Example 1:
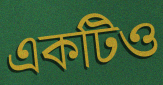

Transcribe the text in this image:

একটিও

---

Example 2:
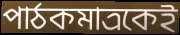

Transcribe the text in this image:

পাঠকমাত্রকেই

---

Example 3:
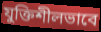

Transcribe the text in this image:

যুক্তিশীলভাবে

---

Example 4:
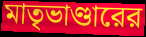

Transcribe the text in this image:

মাতৃভাণ্ডারের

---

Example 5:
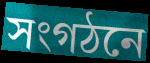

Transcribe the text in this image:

সংগঠনে